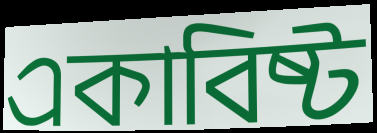
একাবিষ্ট